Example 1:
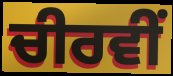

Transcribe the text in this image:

ਚੀਰਵੀਂ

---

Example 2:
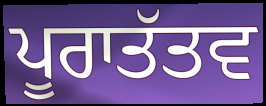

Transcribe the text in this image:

ਪੂਰਾਤੱਤਵ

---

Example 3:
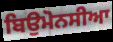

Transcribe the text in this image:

ਬਿਉਮੋਨਸੀਆ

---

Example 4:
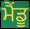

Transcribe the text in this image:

ਮੈਂਡੂ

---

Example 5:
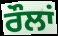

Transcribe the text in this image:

ਰੌਲਾਂ